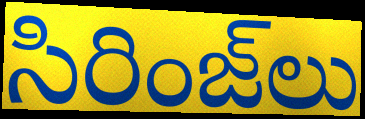
సిరింజ్‌లు